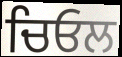
ਚਿਓਲ